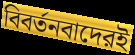
বিবর্তনবাদেরই